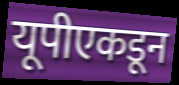
यूपीएकडून